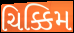
ચિક્કિમ